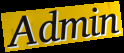
Admin